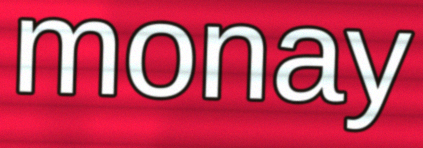
monay